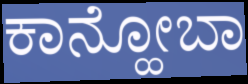
ಕಾನ್ಹೋಬಾ